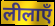
लीलाएँ